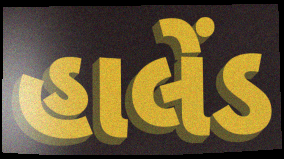
હાલેંડ